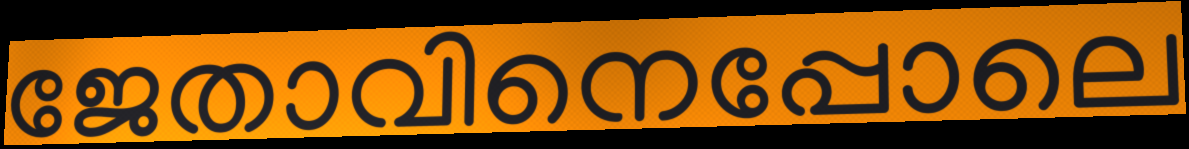
ജേതാവിനെപ്പോലെ